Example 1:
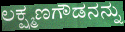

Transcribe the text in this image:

ಲಕ್ಷ್ಮಣಗೌಡನನ್ನು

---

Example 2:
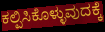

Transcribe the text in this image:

ಕಲ್ಪಿಸಿಕೊಳ್ಳುವುದಕ್ಕೆ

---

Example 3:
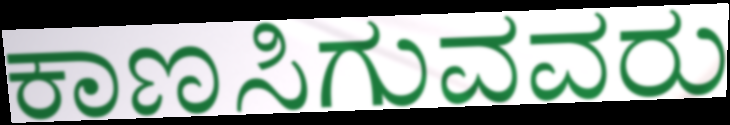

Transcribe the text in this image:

ಕಾಣಸಿಗುವವರು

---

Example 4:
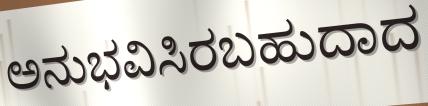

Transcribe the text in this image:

ಅನುಭವಿಸಿರಬಹುದಾದ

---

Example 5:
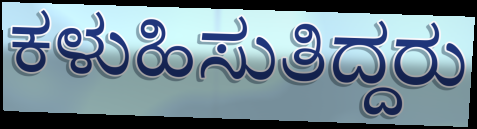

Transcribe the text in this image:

ಕಳುಹಿಸುತಿದ್ದರು